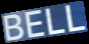
BELL